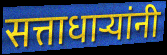
सत्ताधाऱ्यांनी